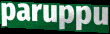
paruppu